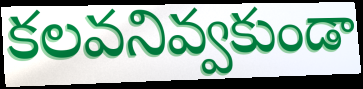
కలవనివ్వకుండా